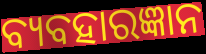
ବ୍ୟବହାରଜ୍ଞାନ